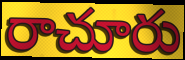
రాచూరు